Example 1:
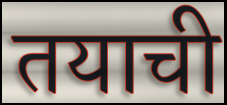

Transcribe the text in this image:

तयाची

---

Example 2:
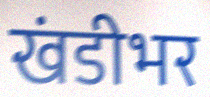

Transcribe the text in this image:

खंडीभर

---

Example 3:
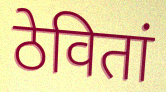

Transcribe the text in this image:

ठेवितां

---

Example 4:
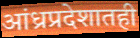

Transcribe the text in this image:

आंध्रप्रदेशातही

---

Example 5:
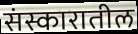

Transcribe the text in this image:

संस्कारातील